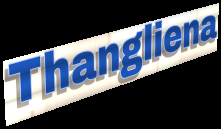
Thangliena